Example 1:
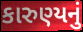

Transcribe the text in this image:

કારુણ્યનું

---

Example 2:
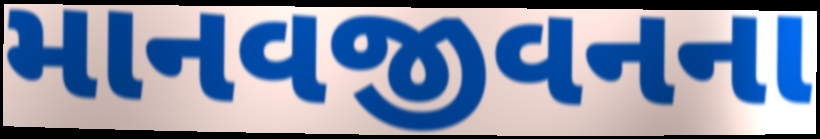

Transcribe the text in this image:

માનવજીવનના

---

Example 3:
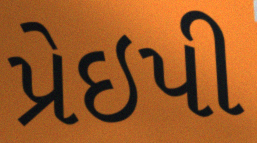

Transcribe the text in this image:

પ્રેઇપી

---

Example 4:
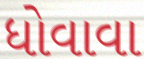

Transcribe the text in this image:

ધોવાવા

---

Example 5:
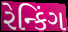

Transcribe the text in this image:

રેન્કિંગ